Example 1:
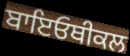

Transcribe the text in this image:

ਬਾਇਓਥੀਕਲ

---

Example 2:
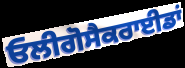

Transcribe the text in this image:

ਓਲੀਗੋਸੈਕਰਾਈਡਾਂ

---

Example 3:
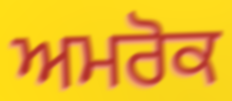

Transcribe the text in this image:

ਅਮਰੋਕ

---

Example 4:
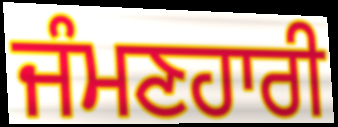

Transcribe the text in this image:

ਜੰਮਣਹਾਰੀ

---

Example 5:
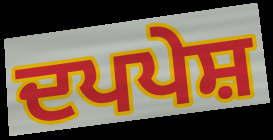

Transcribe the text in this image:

ਦਪਪੇਸ਼